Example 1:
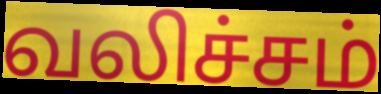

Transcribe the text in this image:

வலிச்சம்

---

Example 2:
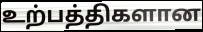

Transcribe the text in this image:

உற்பத்திகளான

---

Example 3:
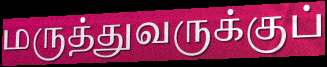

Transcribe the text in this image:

மருத்துவருக்குப்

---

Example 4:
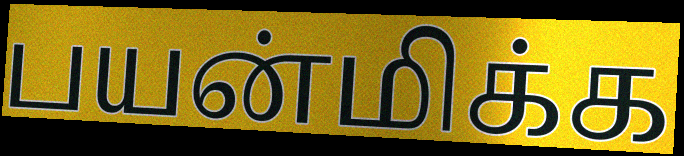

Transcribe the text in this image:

பயன்மிக்க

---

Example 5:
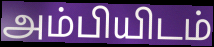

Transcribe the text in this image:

அம்பியிடம்